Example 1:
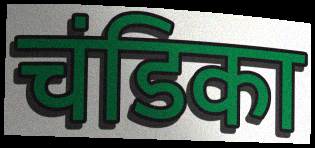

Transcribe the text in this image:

चंडिका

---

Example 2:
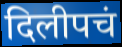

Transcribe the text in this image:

दिलीपचं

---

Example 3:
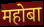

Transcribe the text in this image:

महोबा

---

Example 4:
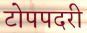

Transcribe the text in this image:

टोपपदरी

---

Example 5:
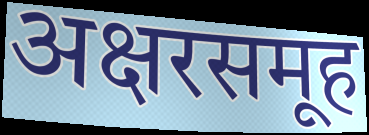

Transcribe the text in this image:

अक्षरसमूह